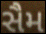
સૈમ